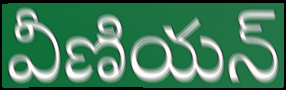
వీణియన్